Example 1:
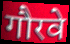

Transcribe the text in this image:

गौरवे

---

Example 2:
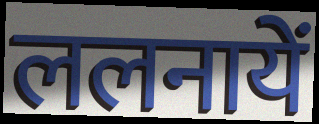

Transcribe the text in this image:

ललनायें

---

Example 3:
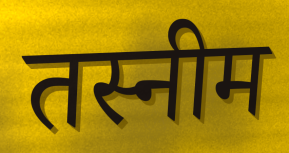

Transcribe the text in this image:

तस्नीम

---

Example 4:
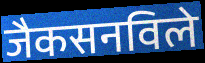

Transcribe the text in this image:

जैकसनविले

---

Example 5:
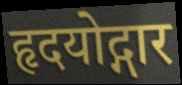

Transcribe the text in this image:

हृदयोद्गार